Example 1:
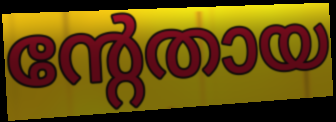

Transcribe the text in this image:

ന്റേതായ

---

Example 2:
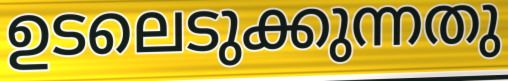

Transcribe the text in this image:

ഉടലെടുക്കുന്നതു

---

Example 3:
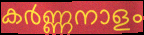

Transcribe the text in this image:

കർണ്ണനാളം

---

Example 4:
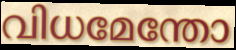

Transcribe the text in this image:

വിധമേന്തോ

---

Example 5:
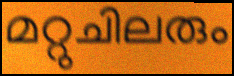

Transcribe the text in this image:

മറ്റുചിലരും